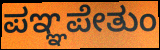
ಪಞ್ಞಪೇತುಂ